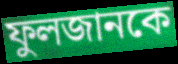
ফুলজানকে